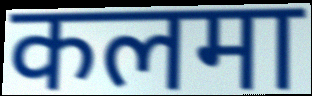
कलमा